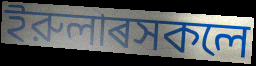
ইৰুলাৰসকলে